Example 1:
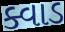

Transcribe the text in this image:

ક્વાડ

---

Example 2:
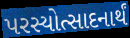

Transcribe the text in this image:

પરસ્યોત્સાદનાર્થં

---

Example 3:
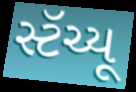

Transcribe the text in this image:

સ્ટૅચ્યૂ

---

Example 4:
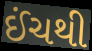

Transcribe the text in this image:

ઈંચથી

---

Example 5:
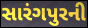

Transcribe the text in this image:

સારંગપુરની